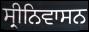
ਸ੍ਰੀਨਿਵਾਸਨ